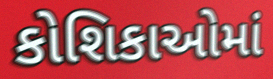
કોશિકાઓમાં